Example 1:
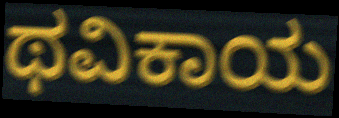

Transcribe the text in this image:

ಥವಿಕಾಯ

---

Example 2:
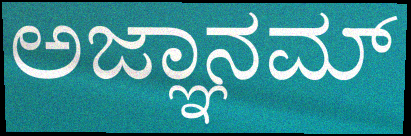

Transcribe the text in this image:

ಅಜ್ಞಾನಮ್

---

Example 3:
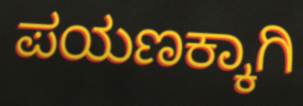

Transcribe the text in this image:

ಪಯಣಕ್ಕಾಗಿ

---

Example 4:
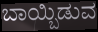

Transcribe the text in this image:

ಬಾಯ್ಬಿಡುವ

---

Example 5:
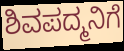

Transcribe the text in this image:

ಶಿವಪದ್ಮನಿಗೆ